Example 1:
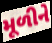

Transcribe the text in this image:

મૂળીને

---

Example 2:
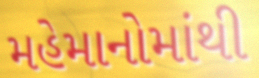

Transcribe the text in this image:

મહેમાનોમાંથી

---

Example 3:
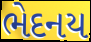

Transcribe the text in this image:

ભેદનય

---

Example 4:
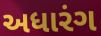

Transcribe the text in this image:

અધારંગ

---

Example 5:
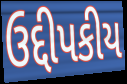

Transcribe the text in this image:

ઉદ્દીપકીય